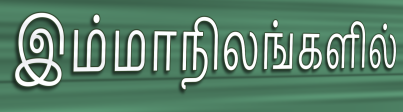
இம்மாநிலங்களில்